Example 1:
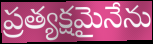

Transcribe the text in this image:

ప్రత్యక్షమైనేను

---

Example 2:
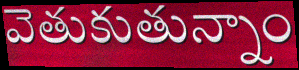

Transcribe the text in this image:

వెతుకుతున్నాం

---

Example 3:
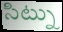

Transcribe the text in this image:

సిట్ను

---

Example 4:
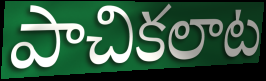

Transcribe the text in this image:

పాచికలాట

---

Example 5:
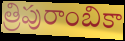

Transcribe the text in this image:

త్రిపురాంబికా